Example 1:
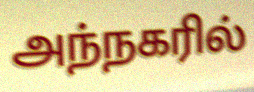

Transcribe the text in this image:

அந்நகரில்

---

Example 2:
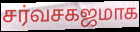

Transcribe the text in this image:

சர்வசகஜமாக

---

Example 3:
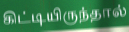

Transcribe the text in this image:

கிட்டியிருந்தால்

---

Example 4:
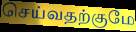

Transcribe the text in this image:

செய்வதற்குமே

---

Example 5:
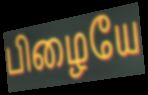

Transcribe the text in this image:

பிழையே